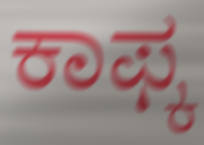
ಕಾಫ್ಕ